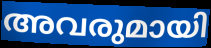
അവരുമായി